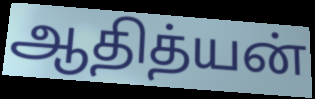
ஆதித்யன்